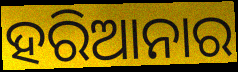
ହରିଆନାର